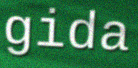
gida